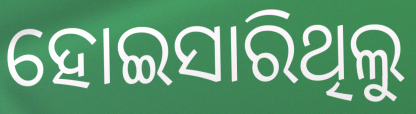
ହୋଇସାରିଥିଲୁ